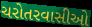
ચરોતરવાસીઓ